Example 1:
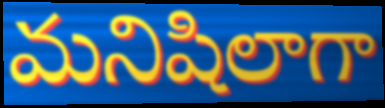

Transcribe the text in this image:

మనిషిలాగా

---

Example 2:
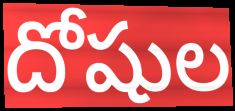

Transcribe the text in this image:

దోషుల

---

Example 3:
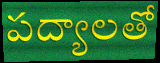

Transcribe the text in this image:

పద్యాలతో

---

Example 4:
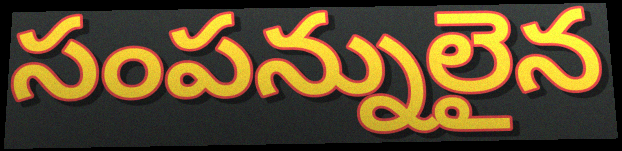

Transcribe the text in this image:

సంపన్నులైన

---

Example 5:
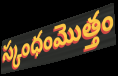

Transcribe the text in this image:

స్కంధంమొత్తం